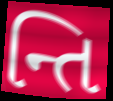
ન્તિ